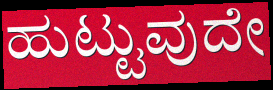
ಹುಟ್ಟುವುದೇ